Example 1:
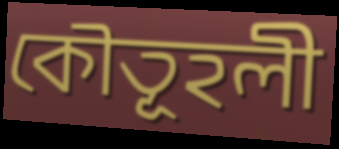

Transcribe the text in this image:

কৌতূহলী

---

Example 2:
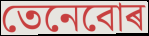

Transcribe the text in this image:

তেনেবোৰ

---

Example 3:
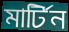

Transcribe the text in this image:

মাৰ্টিন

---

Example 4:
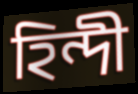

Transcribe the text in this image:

হিন্দী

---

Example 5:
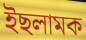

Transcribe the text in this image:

ইছলামক